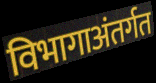
विभागाअंतर्गत